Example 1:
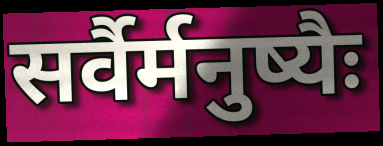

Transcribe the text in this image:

सर्वैर्मनुष्यैः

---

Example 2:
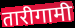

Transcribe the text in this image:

तारीगामी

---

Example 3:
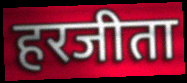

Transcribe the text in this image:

हरजीता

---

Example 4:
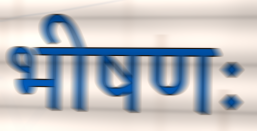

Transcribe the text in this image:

भीषणः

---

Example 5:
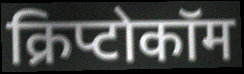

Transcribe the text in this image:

क्रिप्टोकॉम